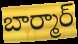
బార్మార్